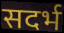
सदर्भ